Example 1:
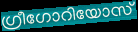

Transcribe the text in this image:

ഗ്രീഗോറിയോസ്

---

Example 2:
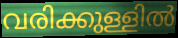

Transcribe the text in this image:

വരിക്കുള്ളിൽ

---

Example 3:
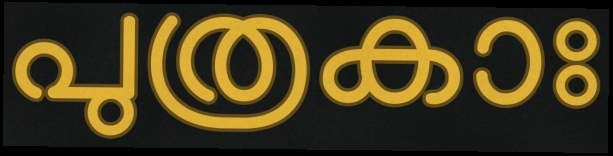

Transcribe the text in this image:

പുത്രകാഃ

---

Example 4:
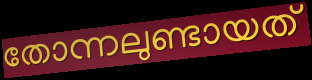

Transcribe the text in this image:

തോന്നലുണ്ടായത്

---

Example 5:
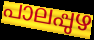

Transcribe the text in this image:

പാലപ്പുഴ